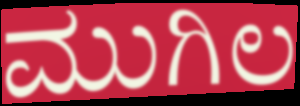
ಮುಗಿಲ